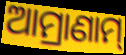
ଆମ୍ରାଣାମ୍